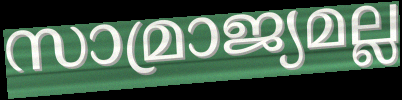
സാമ്രാജ്യമല്ല